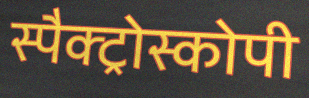
स्पैक्ट्रोस्कोपी